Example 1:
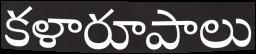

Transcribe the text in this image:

కళారూపాలు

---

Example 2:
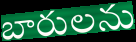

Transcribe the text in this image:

బారులను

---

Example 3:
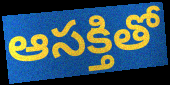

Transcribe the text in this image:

ఆసక్తితో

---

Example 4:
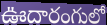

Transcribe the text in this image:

ఊదారంగులో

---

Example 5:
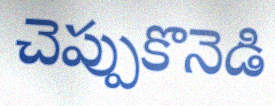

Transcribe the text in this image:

చెప్పుకొనెడి